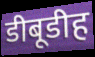
डीबूडीह